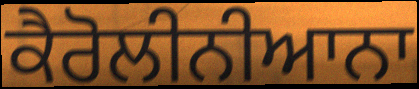
ਕੈਰੋਲੀਨੀਆਨਾ